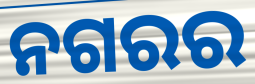
ନଗରର